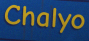
Chalyo